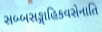
સબ્બસઙ્ગાહિકવસેનાતિ